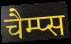
चैम्प्स